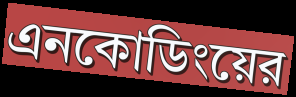
এনকোডিংয়ের